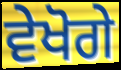
ਵੇਖੋਗੇ